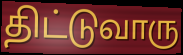
திட்டுவாரு